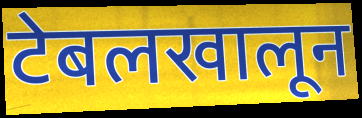
टेबलखालून